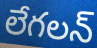
లేగలన్